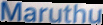
Maruthu